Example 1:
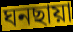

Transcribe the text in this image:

ঘনছায়া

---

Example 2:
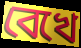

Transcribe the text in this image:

বেখে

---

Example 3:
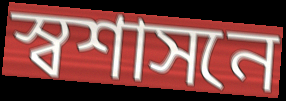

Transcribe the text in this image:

স্বশাসনে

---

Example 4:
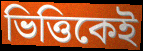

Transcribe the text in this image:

ভিত্তিকেই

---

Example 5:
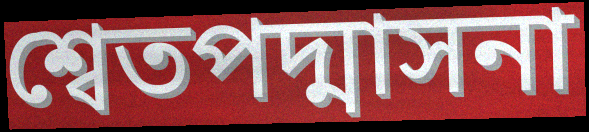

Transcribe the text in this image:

শ্বেতপদ্মাসনা